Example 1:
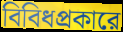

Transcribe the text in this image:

বিবিধপ্রকারে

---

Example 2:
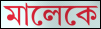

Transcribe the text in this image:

মালেকে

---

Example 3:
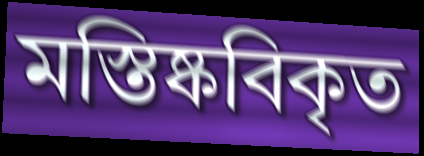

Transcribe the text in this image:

মস্তিষ্কবিকৃত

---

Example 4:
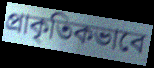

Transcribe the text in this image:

প্রাকৃতিকভাবে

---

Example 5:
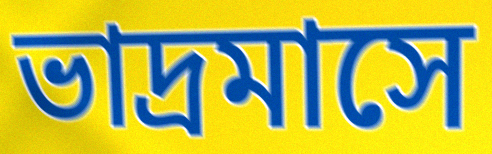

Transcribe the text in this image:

ভাদ্রমাসে